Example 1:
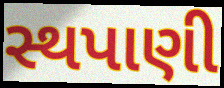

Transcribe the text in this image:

સ્થપાણી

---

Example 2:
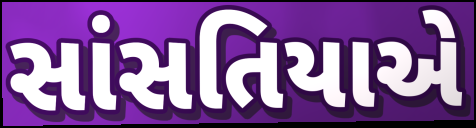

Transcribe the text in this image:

સાંસતિયાએ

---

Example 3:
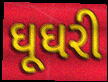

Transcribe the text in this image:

ઘૂઘરી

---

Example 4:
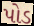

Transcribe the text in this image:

પોડ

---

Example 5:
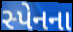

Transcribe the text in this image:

સ્પેનના